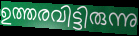
ഉത്തരവിട്ടിരുന്നു